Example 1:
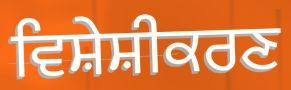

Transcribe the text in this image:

ਵਿਸ਼ੇਸ਼ੀਕਰਣ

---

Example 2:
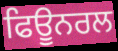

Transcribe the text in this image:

ਫਿਊਨਰਲ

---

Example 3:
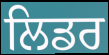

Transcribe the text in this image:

ਲਿਡਰ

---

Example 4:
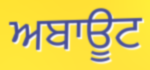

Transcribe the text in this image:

ਅਬਾਊਟ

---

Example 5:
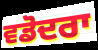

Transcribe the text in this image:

ਵਡੋਦਰਾ